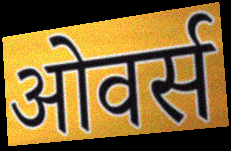
ओवर्स